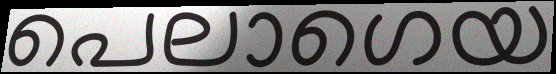
പെലാഗെയ